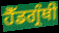
ਹੈੱਡਗ੍ਰੰਥੀ